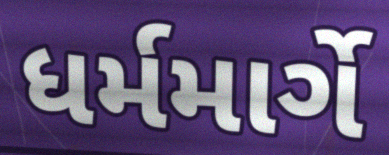
ધર્મમાર્ગે